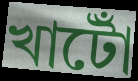
খাটোঁ